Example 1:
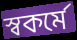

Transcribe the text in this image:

স্বকর্মে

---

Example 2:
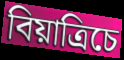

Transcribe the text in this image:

বিয়াত্রিচে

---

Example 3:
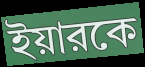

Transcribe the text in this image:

ইয়ারকে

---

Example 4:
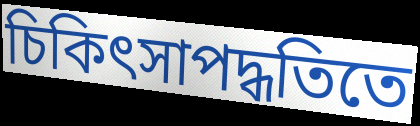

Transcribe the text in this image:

চিকিৎসাপদ্ধতিতে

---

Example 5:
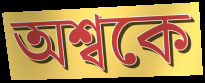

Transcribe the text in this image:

অশ্বকে